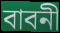
বাবনী